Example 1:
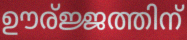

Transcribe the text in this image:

ഊര്ജ്ജത്തിന്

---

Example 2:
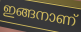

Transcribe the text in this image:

ഇങ്ങനാണ്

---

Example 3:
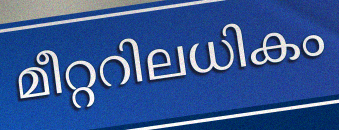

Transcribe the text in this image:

മീറ്ററിലധികം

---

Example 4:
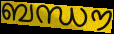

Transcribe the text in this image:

ബന്ധൗ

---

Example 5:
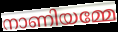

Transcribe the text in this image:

നാണിയമ്മേ